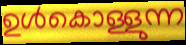
ഉൾകൊള്ളുന്ന